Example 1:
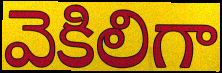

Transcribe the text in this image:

వెకిలిగా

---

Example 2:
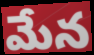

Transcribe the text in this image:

మేన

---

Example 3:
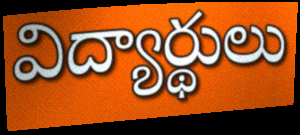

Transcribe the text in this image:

విద్యార్థులు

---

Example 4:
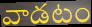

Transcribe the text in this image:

వాడటం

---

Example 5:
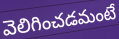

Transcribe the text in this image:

వెలిగించడమంటే